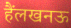
हैंलखनऊ